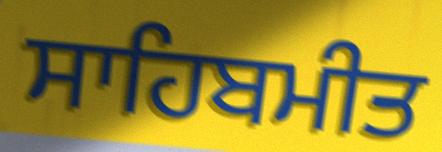
ਸਾਹਿਬਮੀਤ